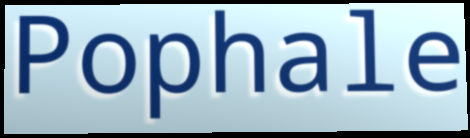
Pophale